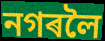
নগৰলৈ